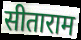
सीताराम